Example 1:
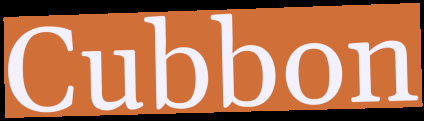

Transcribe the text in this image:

Cubbon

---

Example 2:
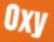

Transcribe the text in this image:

Oxy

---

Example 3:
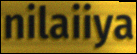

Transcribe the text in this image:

nilaiiya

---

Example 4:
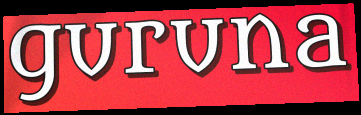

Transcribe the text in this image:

guruna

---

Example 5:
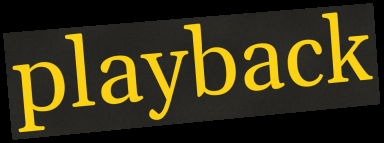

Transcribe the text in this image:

playback